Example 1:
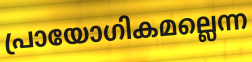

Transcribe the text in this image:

പ്രായോഗികമല്ലെന്ന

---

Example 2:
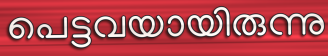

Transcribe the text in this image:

പെട്ടവയായിരുന്നു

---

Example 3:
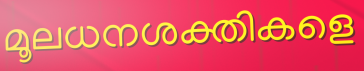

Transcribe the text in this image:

മൂലധനശക്തികളെ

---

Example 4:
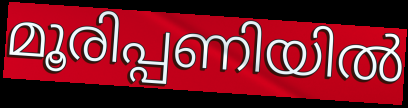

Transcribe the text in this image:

മൂരിപ്പണിയിൽ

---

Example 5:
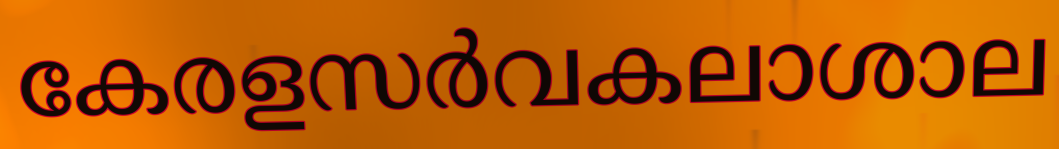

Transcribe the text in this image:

കേരളസർവകലാശാല